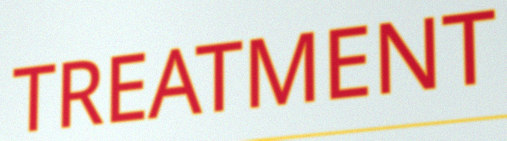
TREATMENT